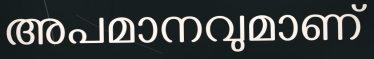
അപമാനവുമാണ്